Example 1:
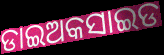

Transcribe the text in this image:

ଡାଇଅକସାଇଡ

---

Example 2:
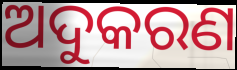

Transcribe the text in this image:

ଅଦୁକରଣ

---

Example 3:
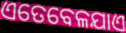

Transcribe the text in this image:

ଏତେବେଳଯାଏ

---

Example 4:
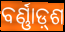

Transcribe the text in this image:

ବର୍ଣ୍ଣାଡ଼୍‌ଶ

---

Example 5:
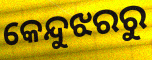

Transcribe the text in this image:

କେନ୍ଦୁଝରରୁ